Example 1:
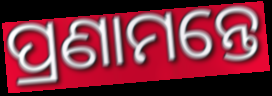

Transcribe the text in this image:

ପ୍ରଣାମନ୍ତେ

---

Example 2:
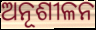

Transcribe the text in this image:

ଅନୂଶୀଳନ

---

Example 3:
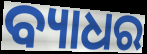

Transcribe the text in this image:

ବ୍ୟାଧର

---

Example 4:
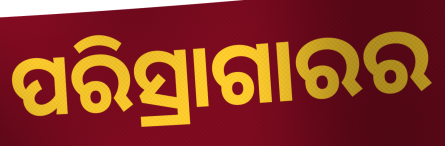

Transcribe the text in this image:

ପରିସ୍ରାଗାରର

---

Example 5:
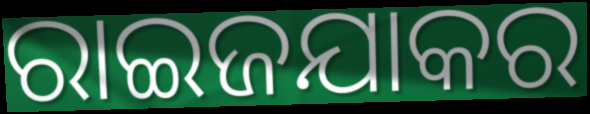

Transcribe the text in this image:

ରାଇଜଯାକର